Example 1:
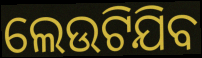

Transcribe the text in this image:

ଲେଉଟିଯିବ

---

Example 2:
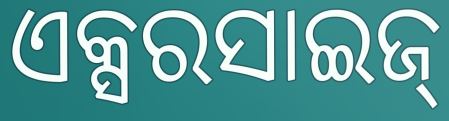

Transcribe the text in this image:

ଏକ୍ସରସାଇଜ୍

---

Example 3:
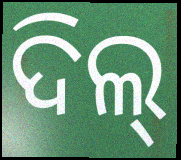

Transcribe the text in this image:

ଦିଲ୍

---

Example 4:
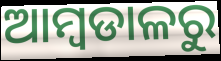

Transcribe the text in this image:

ଆମ୍ବଡାଳରୁ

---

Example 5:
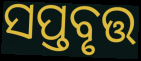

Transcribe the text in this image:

ସପ୍ତବୃତ୍ତ